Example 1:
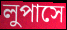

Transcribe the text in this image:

লুপাসে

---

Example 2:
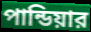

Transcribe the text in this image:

পান্ডিয়ার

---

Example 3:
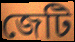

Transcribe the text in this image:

জেটি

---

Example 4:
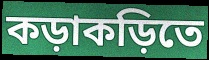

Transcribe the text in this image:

কড়াকড়িতে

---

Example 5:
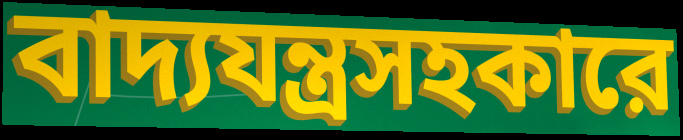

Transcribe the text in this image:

বাদ্যযন্ত্রসহকারে